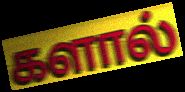
களால்